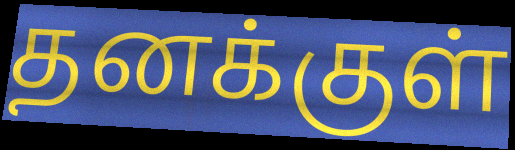
தனக்குள்